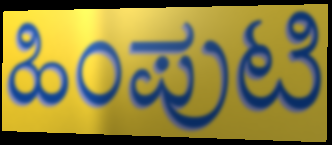
ಹಿಂಪುಟಿ